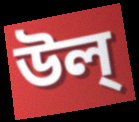
উল্